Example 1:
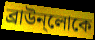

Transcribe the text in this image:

ব্রাউন্লোকে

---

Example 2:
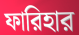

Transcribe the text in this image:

ফারিহার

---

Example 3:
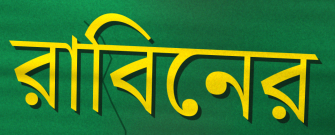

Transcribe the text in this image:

রাবিনের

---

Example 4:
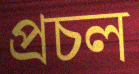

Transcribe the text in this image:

প্রচল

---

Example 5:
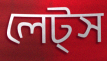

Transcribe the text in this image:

লেট্‌স